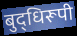
बुद्धिरूपी